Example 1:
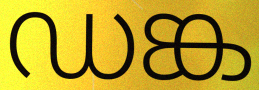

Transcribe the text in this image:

ഡങ്ക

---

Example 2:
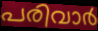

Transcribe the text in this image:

പരിവാർ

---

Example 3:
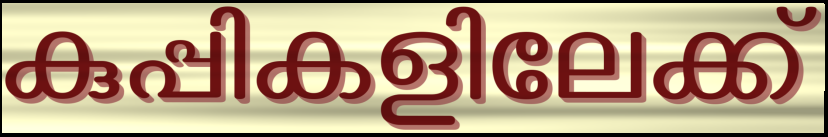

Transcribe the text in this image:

കുപ്പികളിലേക്ക്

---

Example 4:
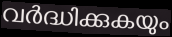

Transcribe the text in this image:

വർദ്ധിക്കുകയും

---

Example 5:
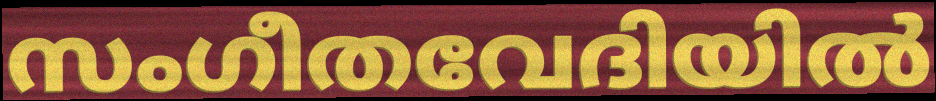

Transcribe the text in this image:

സംഗീതവേദിയിൽ